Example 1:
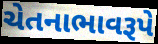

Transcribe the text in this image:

ચેતનાભાવરૂપે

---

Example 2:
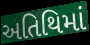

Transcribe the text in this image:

અતિથિમાં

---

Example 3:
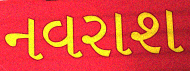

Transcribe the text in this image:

નવરાશ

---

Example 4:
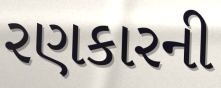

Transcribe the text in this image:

રણકારની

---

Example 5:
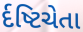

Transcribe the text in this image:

ર્દષ્ટિચેતા